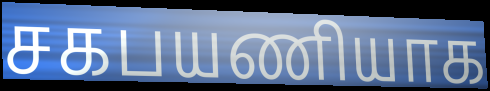
சகபயணியாக